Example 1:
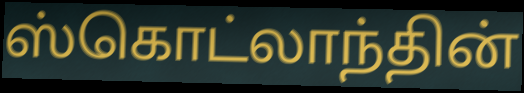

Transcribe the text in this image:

ஸ்கொட்லாந்தின்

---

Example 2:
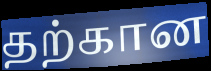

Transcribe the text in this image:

தற்கான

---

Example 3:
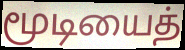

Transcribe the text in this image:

மூடியைத்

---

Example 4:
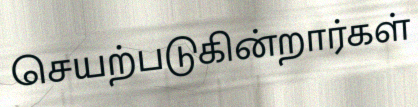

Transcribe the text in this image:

செயற்படுகின்றார்கள்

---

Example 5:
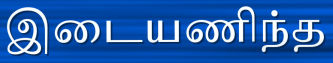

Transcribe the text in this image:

இடையணிந்த